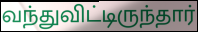
வந்துவிட்டிருந்தார்